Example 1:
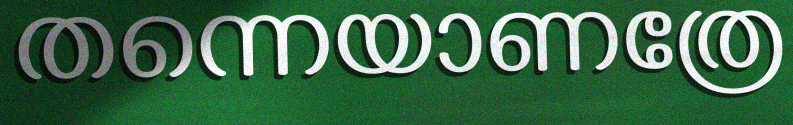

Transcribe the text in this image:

തന്നെയാണത്രേ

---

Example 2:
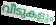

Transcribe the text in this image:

വീടുകളും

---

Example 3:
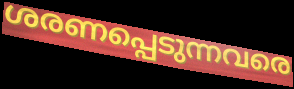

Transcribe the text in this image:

ശരണപ്പെടുന്നവരെ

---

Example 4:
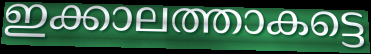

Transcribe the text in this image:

ഇക്കാലത്താകട്ടെ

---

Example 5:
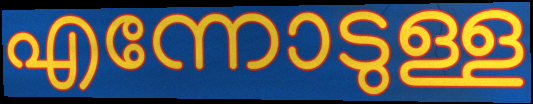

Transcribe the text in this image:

എന്നോടുള്ള